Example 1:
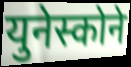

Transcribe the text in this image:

युनेस्कोने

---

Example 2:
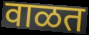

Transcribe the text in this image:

वाळत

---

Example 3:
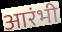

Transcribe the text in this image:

आरंभी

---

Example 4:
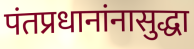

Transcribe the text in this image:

पंतप्रधानांनासुद्धा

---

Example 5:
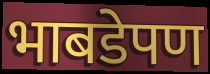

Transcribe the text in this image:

भाबडेपण